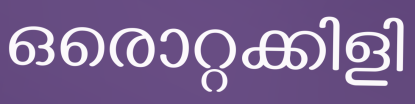
ഒരൊറ്റക്കിളി